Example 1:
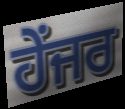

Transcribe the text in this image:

ਹੇਂਜਰ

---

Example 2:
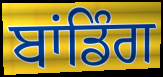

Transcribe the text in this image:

ਬਾਂਡਿੰਗ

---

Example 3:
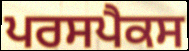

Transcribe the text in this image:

ਪਰਸਪੈਕਸ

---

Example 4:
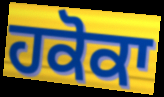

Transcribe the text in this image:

ਹਕੋਕਾ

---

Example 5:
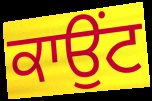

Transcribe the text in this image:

ਕਾਉਂਟ